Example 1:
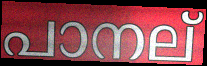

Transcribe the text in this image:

പാനല്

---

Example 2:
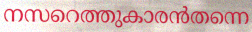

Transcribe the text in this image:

നസറെത്തുകാരൻതന്നെ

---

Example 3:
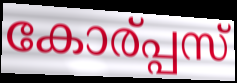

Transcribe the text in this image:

കോര്പ്പസ്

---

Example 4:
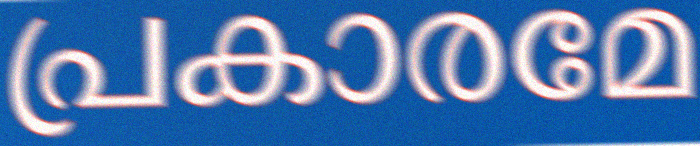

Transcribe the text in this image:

പ്രകാരമേ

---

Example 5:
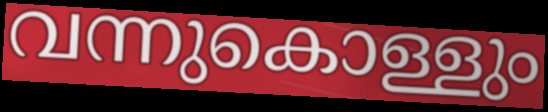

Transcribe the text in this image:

വന്നുകൊള്ളും